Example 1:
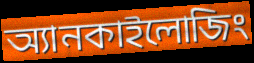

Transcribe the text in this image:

অ্যানকাইলোজিং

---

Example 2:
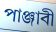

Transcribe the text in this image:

পাঞ্জাবী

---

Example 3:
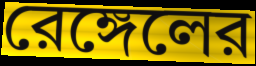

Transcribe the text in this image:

রেঙ্গেলের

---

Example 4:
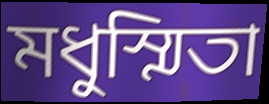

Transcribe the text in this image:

মধুস্মিতা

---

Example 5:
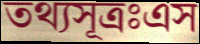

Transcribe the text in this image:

তথ্যসূত্রঃএস